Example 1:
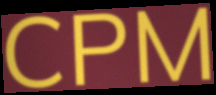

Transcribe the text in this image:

CPM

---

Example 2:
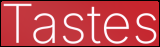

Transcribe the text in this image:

Tastes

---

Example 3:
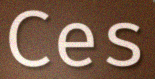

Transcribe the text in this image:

Ces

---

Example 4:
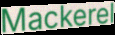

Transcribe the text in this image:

Mackerel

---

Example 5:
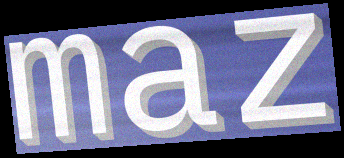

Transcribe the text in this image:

maz